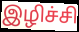
இழிச்சி